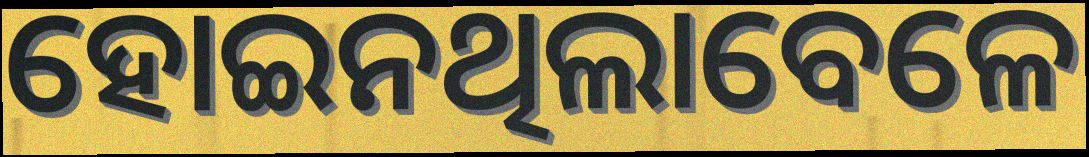
ହୋଇନଥିଲାବେଳେ